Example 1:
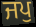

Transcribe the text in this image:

ਜਪੁ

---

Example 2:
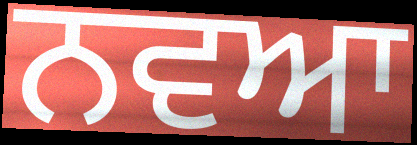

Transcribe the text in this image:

ਨਵਆ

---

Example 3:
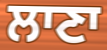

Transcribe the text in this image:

ਲਾਣਾ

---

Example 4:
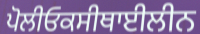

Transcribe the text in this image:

ਪੋਲੀਓਕਸੀਥਾਈਲੀਨ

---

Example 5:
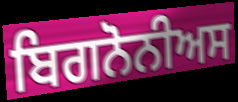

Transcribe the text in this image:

ਬਿਗਨੋਨੀਅਸ